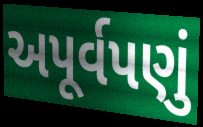
અપૂર્વપણું